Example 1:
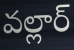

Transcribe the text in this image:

వల్లార్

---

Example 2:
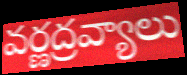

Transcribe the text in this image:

వర్ణద్రవ్యాలు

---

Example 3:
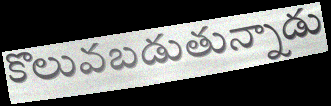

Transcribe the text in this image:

కొలువబడుతున్నాడు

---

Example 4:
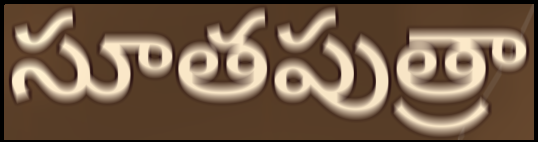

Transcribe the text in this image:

సూతపుత్రా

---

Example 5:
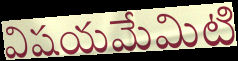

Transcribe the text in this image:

విషయమేమిటి